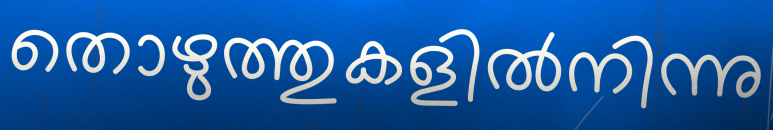
തൊഴുത്തുകളിൽനിന്നു